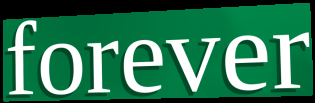
forever